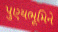
પુણ્યભૂમિને